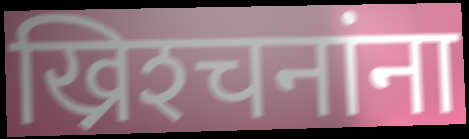
ख्रिश्‍चनांना